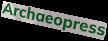
Archaeopress